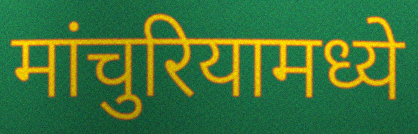
मांचुरियामध्ये